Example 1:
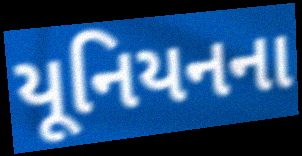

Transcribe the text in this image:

યૂનિયનના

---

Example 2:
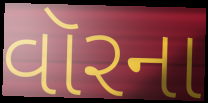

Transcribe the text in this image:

વૉરના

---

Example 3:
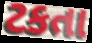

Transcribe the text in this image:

ટકતા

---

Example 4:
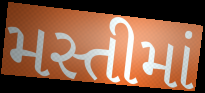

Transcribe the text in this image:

મસ્તીમાં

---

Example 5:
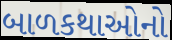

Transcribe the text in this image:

બાળકથાઓનો